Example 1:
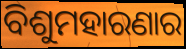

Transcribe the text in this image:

ବିଶୁମହାରଣାର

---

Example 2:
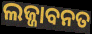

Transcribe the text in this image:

ଲଜ୍ଜାବନତ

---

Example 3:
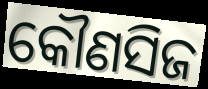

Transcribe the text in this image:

କୌଣସିଜ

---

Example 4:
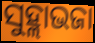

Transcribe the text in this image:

ସୁହ୍ଲାଭଜା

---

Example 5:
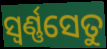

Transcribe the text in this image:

ସ୍ଵର୍ଣ୍ଣସେତୁ